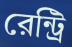
রেন্ট্রি